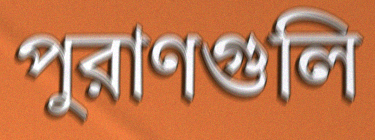
পুরাণগুলি